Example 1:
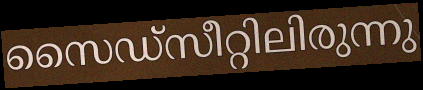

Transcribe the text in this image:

സൈഡ്സീറ്റിലിരുന്നു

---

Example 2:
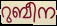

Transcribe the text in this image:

റുബീന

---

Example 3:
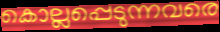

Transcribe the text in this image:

കൊല്ലപ്പെടുന്നവരെ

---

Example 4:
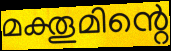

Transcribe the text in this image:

മക്തൂമിന്റെ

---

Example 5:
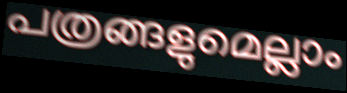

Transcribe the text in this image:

പത്രങ്ങളുമെല്ലാം